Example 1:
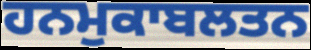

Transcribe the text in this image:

ਹਨਮੁਕਾਬਲਤਨ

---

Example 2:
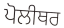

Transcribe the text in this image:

ਪੋਲੀਥਰ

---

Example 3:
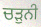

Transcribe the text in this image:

ਚੜੁਨੀ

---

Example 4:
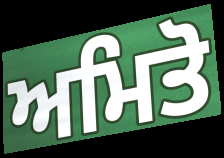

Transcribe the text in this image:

ਅਮਿਤੋ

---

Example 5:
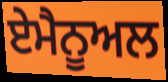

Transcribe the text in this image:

ਏਮੈਨੂਅਲ